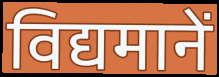
विद्यमानें